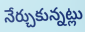
నేర్చుకున్నట్లు